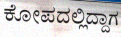
ಕೋಪದಲ್ಲಿದ್ದಾಗ